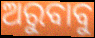
ଅରୁବାବୁ